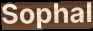
Sophal